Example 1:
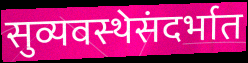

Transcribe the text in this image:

सुव्यवस्थेसंदर्भात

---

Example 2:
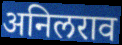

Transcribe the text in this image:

अनिलराव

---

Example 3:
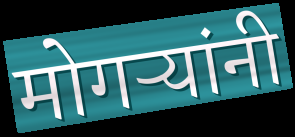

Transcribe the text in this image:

मोगऱ्यांनी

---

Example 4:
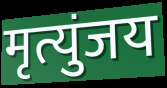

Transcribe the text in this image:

मृत्युंजय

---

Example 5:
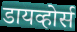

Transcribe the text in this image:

डायव्होर्स